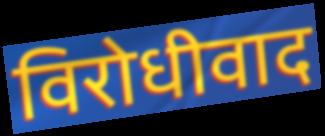
विरोधीवाद